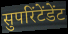
सुपरिंटेंडेंट